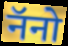
नॅनो